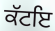
ਕੱਟਇ